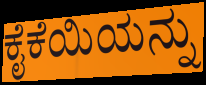
ಕೈಕೆಯಿಯನ್ನು